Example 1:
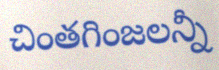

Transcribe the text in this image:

చింతగింజలన్నీ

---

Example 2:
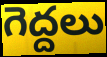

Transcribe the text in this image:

గెద్దలు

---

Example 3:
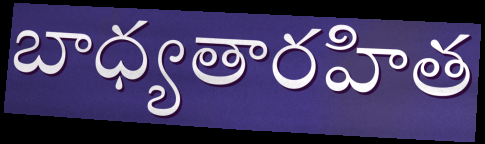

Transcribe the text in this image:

బాధ్యతారహిత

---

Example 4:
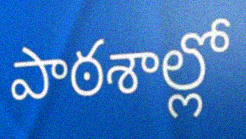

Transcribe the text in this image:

పాఠశాల్లో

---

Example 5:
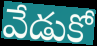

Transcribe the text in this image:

వేడుకో